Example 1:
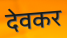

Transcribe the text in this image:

देवकर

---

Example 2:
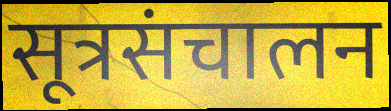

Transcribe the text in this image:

सूत्रसंचालन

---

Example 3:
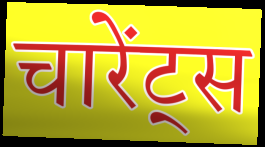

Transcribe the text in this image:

चारेंट्स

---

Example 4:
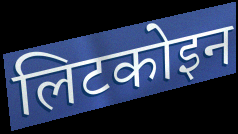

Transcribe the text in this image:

लिटकोइन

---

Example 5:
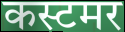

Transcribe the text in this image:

कस्टमर